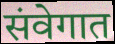
संवेगात